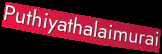
Puthiyathalaimurai